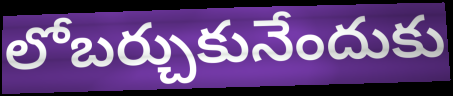
లోబర్చుకునేందుకు